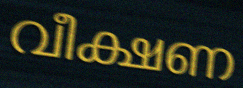
വീക്ഷണ